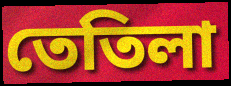
তেতিলা